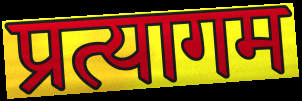
प्रत्यागम